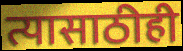
त्यासाठीही